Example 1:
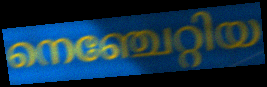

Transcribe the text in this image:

നെഞ്ചേറ്റിയ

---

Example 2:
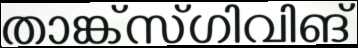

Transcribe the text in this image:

താങ്ക്സ്ഗിവിങ്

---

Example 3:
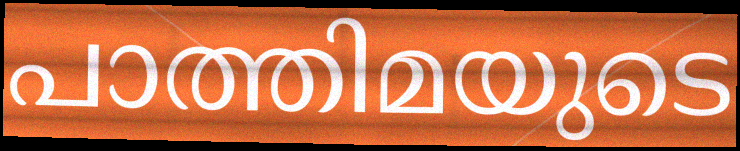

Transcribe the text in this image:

പാത്തിമയുടെ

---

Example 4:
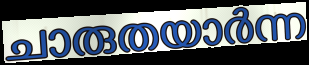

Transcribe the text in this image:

ചാരുതയാർന്ന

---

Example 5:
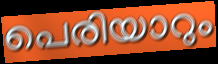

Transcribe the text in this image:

പെരിയാറും